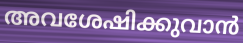
അവശേഷിക്കുവാൻ